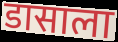
डासाला